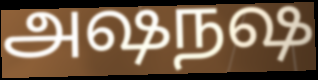
அஷநஷ